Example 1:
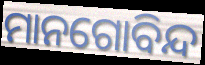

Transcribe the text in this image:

ମାନଗୋବିନ୍ଦ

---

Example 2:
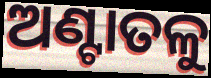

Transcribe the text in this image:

ଅଣ୍ଟାତଳୁ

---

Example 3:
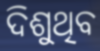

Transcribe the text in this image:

ଦିଶୁଥିବ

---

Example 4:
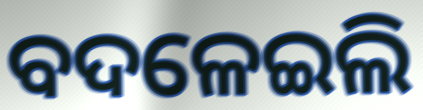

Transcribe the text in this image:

ବଦଳେଇଲି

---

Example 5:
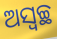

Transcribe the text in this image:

ଅସ୍ଵଚ୍ଛ